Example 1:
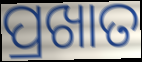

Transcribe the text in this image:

ପ୍ରଖାତ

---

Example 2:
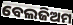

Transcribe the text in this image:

ବେଲଜିଅମ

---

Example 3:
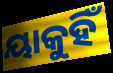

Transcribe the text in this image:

ୟାକୁହିଁ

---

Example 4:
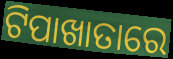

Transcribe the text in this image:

ଟିପାଖାତାରେ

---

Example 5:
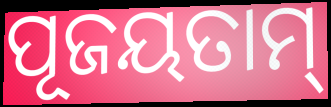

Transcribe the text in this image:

ପୂଜୟତାମ୍